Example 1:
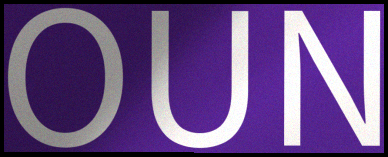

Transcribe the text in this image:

OUN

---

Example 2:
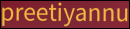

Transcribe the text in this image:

preetiyannu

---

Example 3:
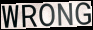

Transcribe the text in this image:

WRONG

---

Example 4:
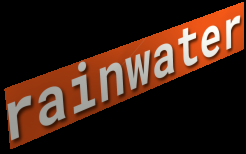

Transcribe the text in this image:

rainwater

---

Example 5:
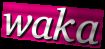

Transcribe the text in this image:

waka